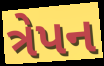
ત્રેપન